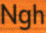
Ngh